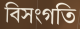
বিসংগতি